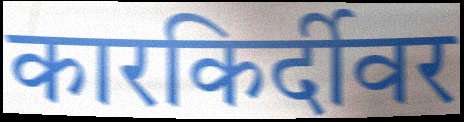
कारकिर्दीवर